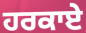
ਹਰਕਾਏ